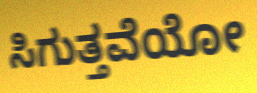
ಸಿಗುತ್ತವೆಯೋ